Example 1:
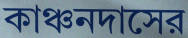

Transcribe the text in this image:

কাঞ্চনদাসের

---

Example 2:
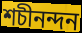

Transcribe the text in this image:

শচীনন্দন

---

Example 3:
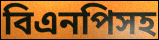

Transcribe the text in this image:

বিএনপিসহ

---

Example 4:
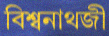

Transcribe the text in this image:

বিশ্বনাথজী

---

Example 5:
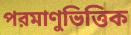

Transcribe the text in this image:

পরমাণুভিত্তিক